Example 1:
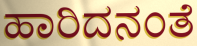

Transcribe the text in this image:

ಹಾರಿದನಂತೆ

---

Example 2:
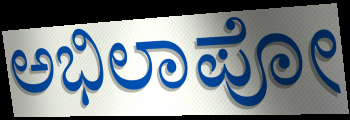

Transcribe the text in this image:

ಅಭಿಲಾಪೋ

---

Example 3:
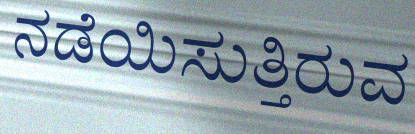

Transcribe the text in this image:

ನಡೆಯಿಸುತ್ತಿರುವ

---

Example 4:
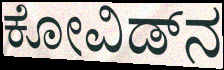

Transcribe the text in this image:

ಕೋವಿಡ್‌ನ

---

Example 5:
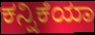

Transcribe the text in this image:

ಕನ್ನಿಕೆಯಾ